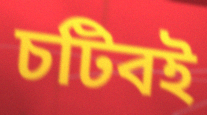
চটিবই